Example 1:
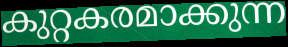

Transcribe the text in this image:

കുറ്റകരമാക്കുന്ന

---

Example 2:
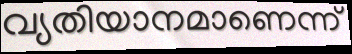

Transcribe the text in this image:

വ്യതിയാനമാണെന്ന്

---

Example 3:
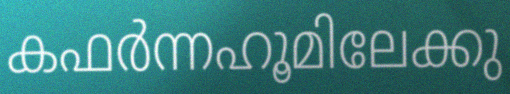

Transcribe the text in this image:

കഫർന്നഹൂമിലേക്കു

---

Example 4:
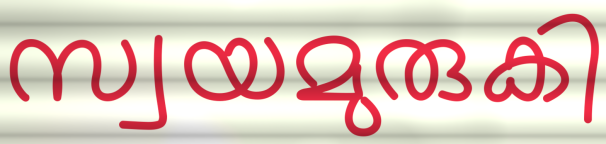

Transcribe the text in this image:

സ്വയമുരുകി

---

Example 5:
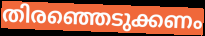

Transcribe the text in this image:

തിരഞ്ഞെടുക്കണം